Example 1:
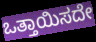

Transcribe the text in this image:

ಒತ್ತಾಯಿಸದೇ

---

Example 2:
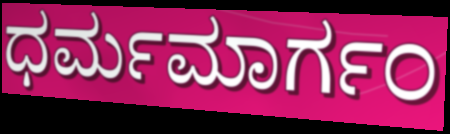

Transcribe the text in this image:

ಧರ್ಮಮಾರ್ಗಂ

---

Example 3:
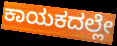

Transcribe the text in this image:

ಕಾಯಕದಲ್ಲೇ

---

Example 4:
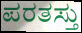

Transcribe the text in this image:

ಪರತಸ್ತು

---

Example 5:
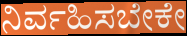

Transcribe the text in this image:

ನಿರ್ವಹಿಸಬೇಕೇ